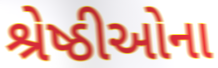
શ્રેષ્ઠીઓના